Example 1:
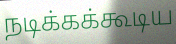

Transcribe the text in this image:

நடிக்கக்கூடிய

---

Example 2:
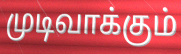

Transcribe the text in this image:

முடிவாக்கும்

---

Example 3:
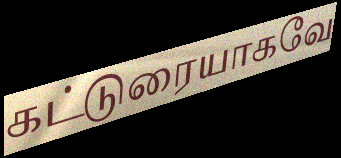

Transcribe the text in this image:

கட்டுரையாகவே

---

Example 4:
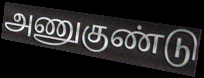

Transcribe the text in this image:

அணுகுண்டு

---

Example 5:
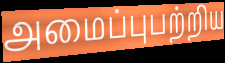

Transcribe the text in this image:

அமைப்புபற்றிய